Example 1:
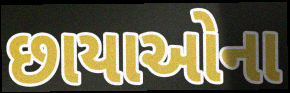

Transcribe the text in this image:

છાયાઓના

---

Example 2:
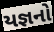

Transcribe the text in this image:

યજ્ઞનો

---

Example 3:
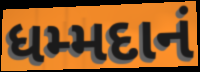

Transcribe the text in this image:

ધમ્મદાનં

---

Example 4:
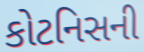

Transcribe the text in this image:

કોટનિસની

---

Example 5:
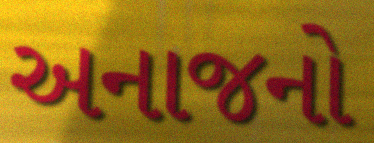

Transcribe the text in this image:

અનાજનો